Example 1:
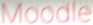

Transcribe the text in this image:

Moodle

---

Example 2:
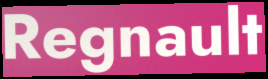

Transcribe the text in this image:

Regnault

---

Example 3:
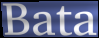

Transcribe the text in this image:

Bata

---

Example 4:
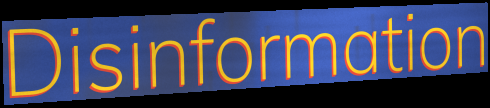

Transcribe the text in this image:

Disinformation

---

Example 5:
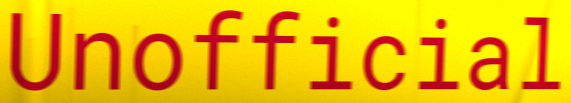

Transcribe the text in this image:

Unofficial